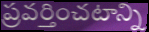
ప్రవర్తించటాన్ని